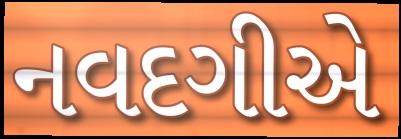
નવદગીએ